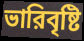
ভারিবৃষ্টি